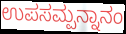
ಉಪಸಮ್ಪನ್ನಾನಂ